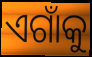
ଏଗାଁକୁ